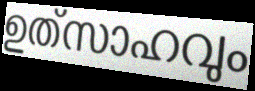
ഉത്‌സാഹവും